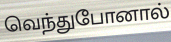
வெந்துபோனால்